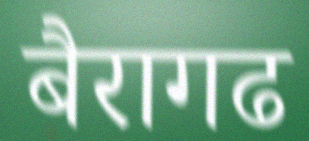
बैरागढ